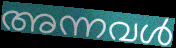
അന്നവൾ